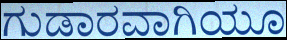
ಗುಡಾರವಾಗಿಯೂ